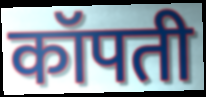
कॉपती